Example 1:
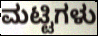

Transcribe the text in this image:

ಮಟ್ಟಿಗಳು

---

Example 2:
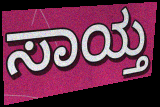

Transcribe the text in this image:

ಸಾಯ್ತ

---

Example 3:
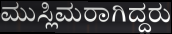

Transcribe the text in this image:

ಮುಸ್ಲಿಮರಾಗಿದ್ದರು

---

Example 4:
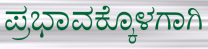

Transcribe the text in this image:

ಪ್ರಭಾವಕ್ಕೊಳಗಾಗಿ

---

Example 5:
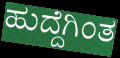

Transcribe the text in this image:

ಹುದ್ದೆಗಿಂತ